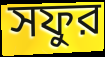
সফুর